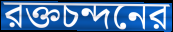
রক্তচন্দনের